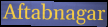
Aftabnagar